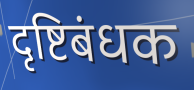
दृष्टिबंधक